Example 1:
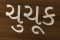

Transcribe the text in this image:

ચુચૂક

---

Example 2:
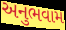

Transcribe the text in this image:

અનુભવામ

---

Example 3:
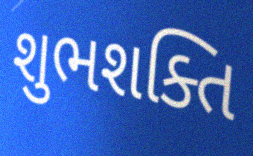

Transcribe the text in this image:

શુભશક્તિ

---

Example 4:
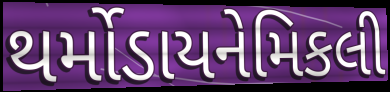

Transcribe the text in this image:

થર્મોડાયનેમિકલી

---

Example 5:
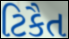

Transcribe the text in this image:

ટિકૈત